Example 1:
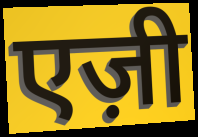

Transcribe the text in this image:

एज़ी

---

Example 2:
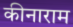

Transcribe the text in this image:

कीनाराम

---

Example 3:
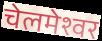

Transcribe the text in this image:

चेलमेश्वर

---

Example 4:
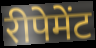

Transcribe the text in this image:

रीपेमेंट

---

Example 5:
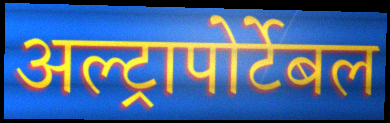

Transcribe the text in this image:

अल्ट्रापोर्टेबल